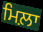
ਮਿਲ਼ਾ